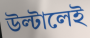
উল্টালেই